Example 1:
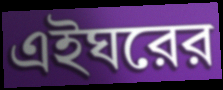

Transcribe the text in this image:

এইঘরের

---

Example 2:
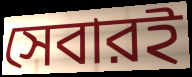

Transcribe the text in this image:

সেবারই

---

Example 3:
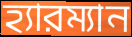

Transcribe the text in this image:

হ্যারম্যান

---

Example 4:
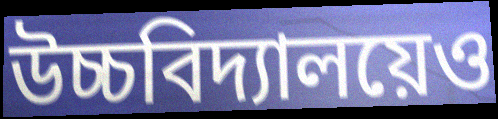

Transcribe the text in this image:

উচ্চবিদ্যালয়েও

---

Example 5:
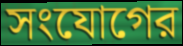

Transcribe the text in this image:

সংযোগের